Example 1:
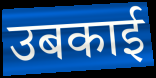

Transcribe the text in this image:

उबकाई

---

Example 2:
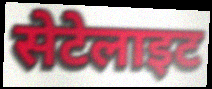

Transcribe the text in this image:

सेटेलाइट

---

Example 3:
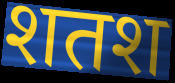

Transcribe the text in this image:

शतश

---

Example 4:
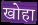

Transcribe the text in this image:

खोहा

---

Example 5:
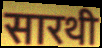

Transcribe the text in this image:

सारथी